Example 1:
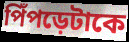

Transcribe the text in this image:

পিঁপড়েটাকে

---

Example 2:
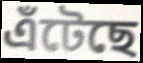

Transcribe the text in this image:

এঁটেছে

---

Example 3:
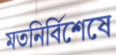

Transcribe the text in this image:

মতনির্বিশেষে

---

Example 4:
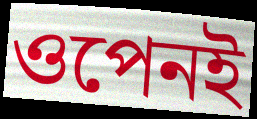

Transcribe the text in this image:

ওপেনই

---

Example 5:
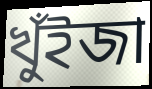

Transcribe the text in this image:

খুঁইজা